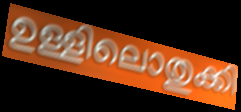
ഉള്ളിലൊതുക്കി